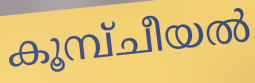
കൂമ്പ്ചീയൽ